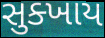
સુક્ખાય